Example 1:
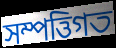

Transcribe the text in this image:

সম্পত্তিগত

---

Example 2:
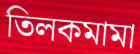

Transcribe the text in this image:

তিলকমামা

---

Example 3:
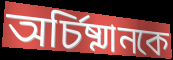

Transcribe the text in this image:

অর্চিষ্মানকে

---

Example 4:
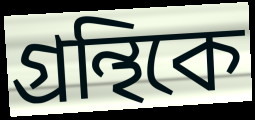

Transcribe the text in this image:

গ্রন্থিকে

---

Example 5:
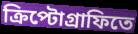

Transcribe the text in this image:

ক্রিপ্টোগ্রাফিতে